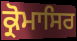
ਕ੍ਰੋਮਾਸਿਰ